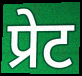
प्रेट